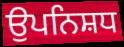
ਉਪਨਿਸ਼ਧ